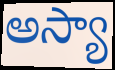
అస్యా